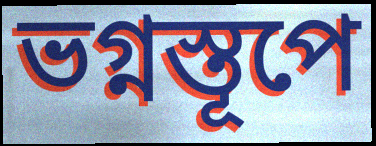
ভগ্নস্তূপে